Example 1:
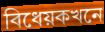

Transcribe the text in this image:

বিধেয়কখনে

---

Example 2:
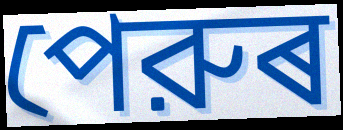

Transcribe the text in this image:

পেৰুৰ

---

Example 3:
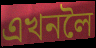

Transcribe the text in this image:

এখনলৈ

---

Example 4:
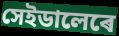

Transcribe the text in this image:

সেইডালেৰে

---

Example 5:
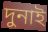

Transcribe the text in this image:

দুনাই